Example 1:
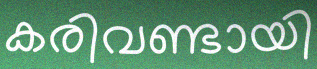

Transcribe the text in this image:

കരിവണ്ടായി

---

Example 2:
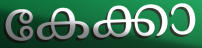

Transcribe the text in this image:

കേക്കാ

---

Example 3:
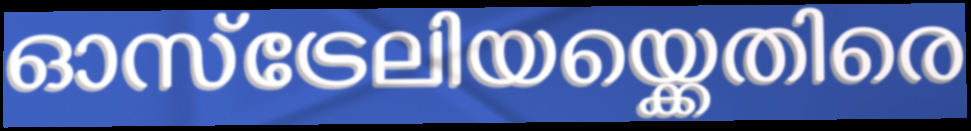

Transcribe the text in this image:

ഓസ്ട്രേലിയയ്ക്കെതിരെ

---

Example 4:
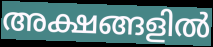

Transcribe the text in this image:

അക്ഷങ്ങളിൽ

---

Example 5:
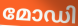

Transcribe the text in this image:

മോഡി